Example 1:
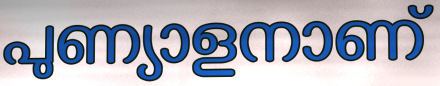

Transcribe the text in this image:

പുണ്യാളനാണ്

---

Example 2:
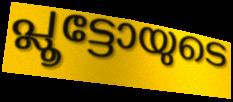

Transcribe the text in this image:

പ്ലൂട്ടോയുടെ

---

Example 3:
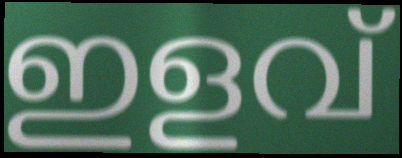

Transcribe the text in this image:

ഇളവ്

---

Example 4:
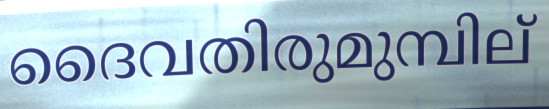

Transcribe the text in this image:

ദൈവതിരുമുമ്പില്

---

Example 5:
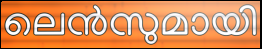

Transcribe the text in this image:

ലെൻസുമായി